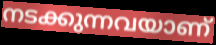
നടക്കുന്നവയാണ്